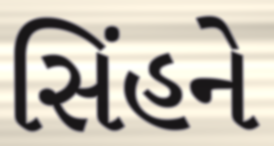
સિંહને